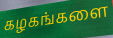
கழகங்களை